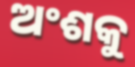
ଅଂଶକୁ